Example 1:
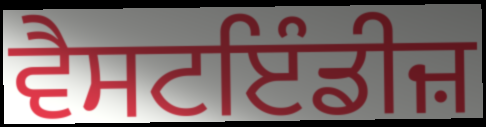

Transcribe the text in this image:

ਵੈਸਟਇੰਡੀਜ਼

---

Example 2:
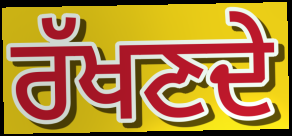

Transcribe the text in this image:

ਰੱਖਣਦੇ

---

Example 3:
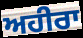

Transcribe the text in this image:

ਅਹੀਰਾ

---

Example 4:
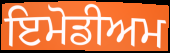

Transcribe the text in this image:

ਇਮੋਡੀਅਮ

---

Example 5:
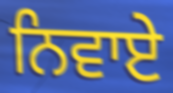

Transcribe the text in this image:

ਨਿਵਾਏ